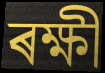
ৰক্ষী